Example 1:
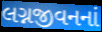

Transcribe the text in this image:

લગ્નજીવનનાં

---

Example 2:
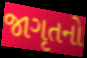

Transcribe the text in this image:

જાગૃતનો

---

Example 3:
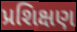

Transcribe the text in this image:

પ્રશિક્ષણ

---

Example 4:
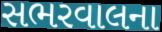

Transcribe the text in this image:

સભરવાલના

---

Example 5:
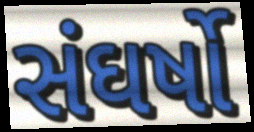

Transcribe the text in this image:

સંઘર્ષો